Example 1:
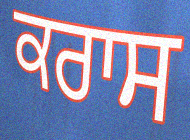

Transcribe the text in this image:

ਕਰਾਸ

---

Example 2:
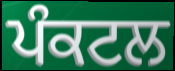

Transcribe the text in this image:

ਪੰਕਟਲ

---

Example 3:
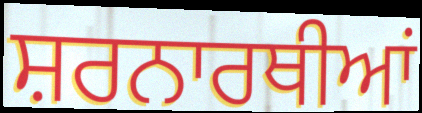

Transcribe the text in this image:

ਸ਼ਰਨਾਰਥੀਆਂ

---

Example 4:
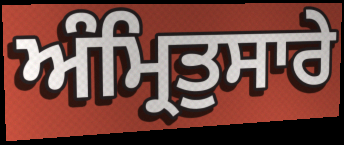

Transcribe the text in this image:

ਅੰਮ੍ਰਿਤੁਸਾਰੇ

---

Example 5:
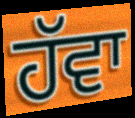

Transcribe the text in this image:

ਹੱਵਾ